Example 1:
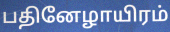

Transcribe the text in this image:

பதினேழாயிரம்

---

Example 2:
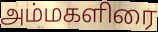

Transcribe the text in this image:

அம்மகளிரை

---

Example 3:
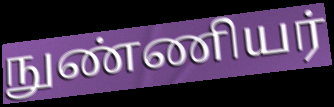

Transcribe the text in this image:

நுண்ணியர்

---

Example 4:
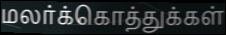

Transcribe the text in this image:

மலர்க்கொத்துக்கள்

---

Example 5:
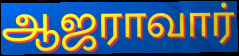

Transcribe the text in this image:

ஆஜராவார்